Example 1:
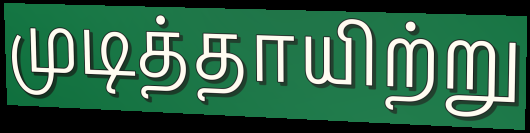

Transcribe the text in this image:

முடித்தாயிற்று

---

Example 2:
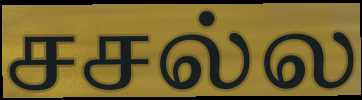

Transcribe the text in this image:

சசல்ல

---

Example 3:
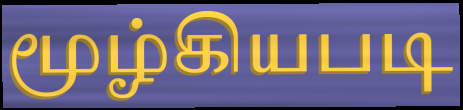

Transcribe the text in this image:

மூழ்கியபடி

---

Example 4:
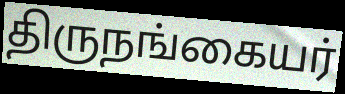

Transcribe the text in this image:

திருநங்கையர்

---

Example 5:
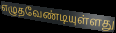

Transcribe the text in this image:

எழுதவேண்டியுள்ளது